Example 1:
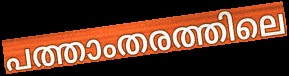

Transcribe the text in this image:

പത്താംതരത്തിലെ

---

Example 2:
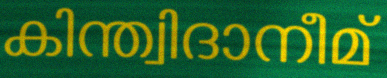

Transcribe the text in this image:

കിന്ത്വിദാനീമ്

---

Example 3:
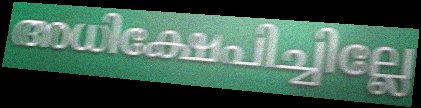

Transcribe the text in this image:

അധിക്ഷേപിച്ചില്ലേ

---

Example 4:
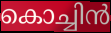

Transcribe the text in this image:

കൊച്ചിൻ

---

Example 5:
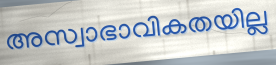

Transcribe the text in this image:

അസ്വാഭാവികതയില്ല